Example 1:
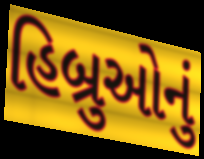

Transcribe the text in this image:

હિબ્રુઓનું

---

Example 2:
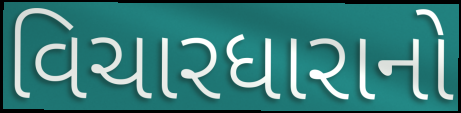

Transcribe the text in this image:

વિચારધારાનો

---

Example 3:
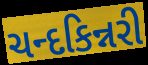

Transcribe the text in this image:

ચન્દકિન્નરી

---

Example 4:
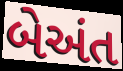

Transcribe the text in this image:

બેઅંત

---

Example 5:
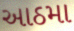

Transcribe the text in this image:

આઠમા